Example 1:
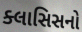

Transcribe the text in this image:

ક્લાસિસનો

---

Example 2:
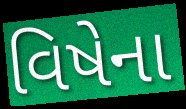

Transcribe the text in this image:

વિષેના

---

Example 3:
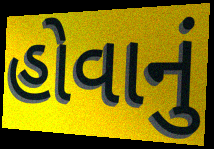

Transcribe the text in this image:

હોવાનું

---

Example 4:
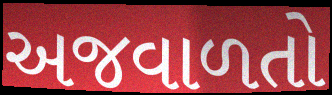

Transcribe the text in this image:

અજવાળતો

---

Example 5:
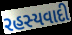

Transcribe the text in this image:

રહસ્યવાદી